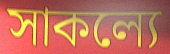
সাকল্যে